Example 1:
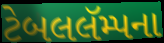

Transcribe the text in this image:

ટેબલલૅમ્પના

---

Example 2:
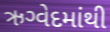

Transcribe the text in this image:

ઋગ્વેદમાંથી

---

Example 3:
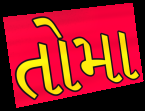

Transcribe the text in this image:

તોમા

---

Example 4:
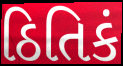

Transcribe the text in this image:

ઠિતિકં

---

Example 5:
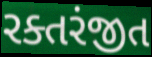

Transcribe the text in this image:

રક્તરંજીત